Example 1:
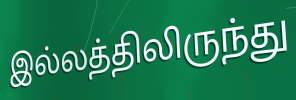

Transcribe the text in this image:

இல்லத்திலிருந்து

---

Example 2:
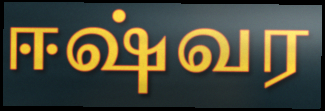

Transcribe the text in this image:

ஈஷ்வர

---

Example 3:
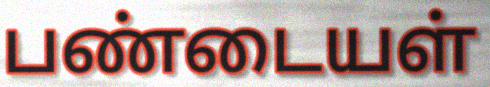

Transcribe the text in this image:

பண்டையள்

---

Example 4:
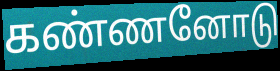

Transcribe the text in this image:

கண்ணனோடு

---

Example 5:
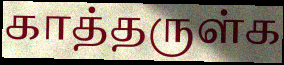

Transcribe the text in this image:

காத்தருள்க